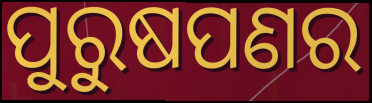
ପୁରୁଷପଣର